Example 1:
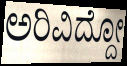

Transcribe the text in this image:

ಅರಿವಿದ್ದೋ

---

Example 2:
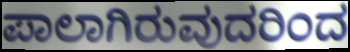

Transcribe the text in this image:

ಪಾಲಾಗಿರುವುದರಿಂದ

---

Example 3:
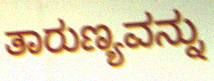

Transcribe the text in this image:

ತಾರುಣ್ಯವನ್ನು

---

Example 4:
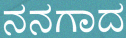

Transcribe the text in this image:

ನನಗಾದ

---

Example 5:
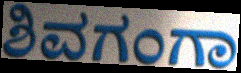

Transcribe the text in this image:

ಶಿವಗಂಗಾ